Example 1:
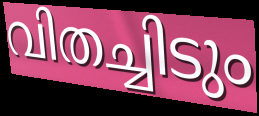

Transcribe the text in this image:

വിതച്ചിടും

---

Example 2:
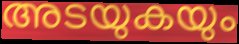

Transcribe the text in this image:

അടയുകയും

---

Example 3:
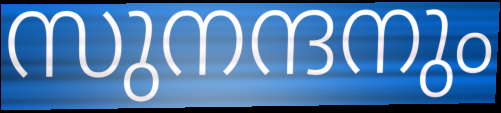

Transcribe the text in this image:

സുനന്ദനും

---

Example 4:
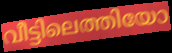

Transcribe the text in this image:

വീട്ടിലെത്തിയോ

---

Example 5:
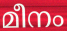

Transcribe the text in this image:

മീനം